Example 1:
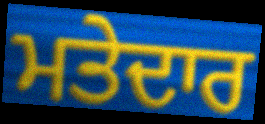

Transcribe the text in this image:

ਮਤੇਦਾਰ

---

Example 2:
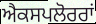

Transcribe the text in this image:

ਐਕਸਪਲੋਰਰਾਂ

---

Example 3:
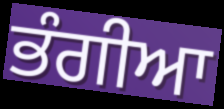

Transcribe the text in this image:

ਭੰਗੀਆ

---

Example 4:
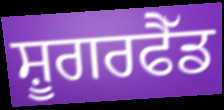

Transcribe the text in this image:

ਸ਼ੂਗਰਫੈੱਡ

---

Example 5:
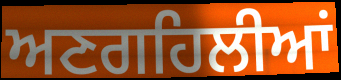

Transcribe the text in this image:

ਅਣਗਹਿਲੀਆਂ